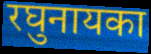
रघुनायका